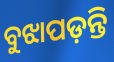
ବୁଝାପଡ଼ନ୍ତି